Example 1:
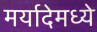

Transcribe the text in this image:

मर्यादेमध्ये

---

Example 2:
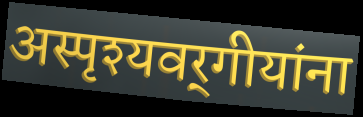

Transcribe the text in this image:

अस्पृश्यवर्गीयांना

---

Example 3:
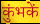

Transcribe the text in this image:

कुंभकें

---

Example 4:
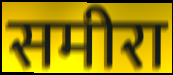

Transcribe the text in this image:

समीरा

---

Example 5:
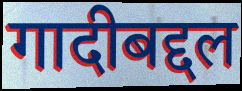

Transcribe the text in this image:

गादीबद्दल